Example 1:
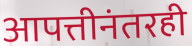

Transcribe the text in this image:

आपत्तीनंतरही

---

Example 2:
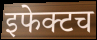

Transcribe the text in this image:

इफेक्टच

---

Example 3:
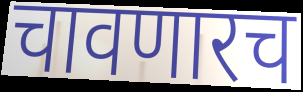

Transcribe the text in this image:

चावणारच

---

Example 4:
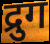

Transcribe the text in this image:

द्रुग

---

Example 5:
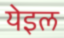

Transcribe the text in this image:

येइल